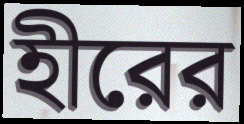
হীরের